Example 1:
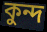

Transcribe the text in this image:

কুন্দ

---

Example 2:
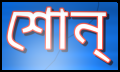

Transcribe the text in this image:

শোন্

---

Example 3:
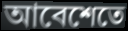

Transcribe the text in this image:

আবেশেতে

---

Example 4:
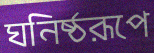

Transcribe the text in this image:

ঘনিষ্ঠরূপে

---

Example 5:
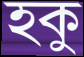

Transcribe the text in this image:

হকু